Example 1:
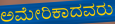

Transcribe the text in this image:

ಅಮೇರಿಕಾದವರು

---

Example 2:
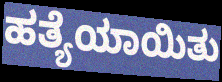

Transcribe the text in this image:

ಹತ್ಯೆಯಾಯಿತು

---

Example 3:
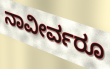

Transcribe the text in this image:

ನಾವೀರ್ವರೂ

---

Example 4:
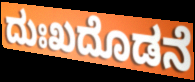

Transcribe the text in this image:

ದುಃಖದೊಡನೆ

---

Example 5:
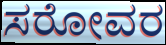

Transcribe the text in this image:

ಸರೋವರ